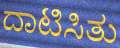
ದಾಟಿಸಿತು